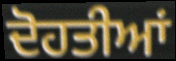
ਦੋਹਤੀਆਂ